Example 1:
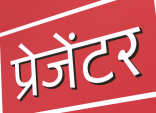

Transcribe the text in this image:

प्रेजेंटर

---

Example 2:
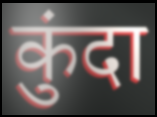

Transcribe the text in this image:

कुंदा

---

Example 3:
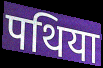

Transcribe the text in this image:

पथिया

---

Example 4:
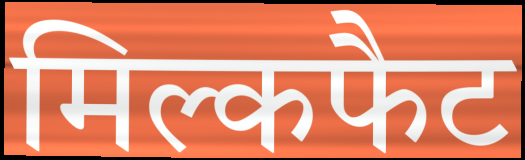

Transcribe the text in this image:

मिल्कफैट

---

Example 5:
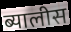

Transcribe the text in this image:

ब्यालीस